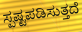
ಸ್ಪಷ್ಟಪಡಿಸುತ್ತದೆ